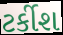
ટર્કીશ